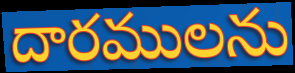
దారములను